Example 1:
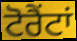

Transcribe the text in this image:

ਟੋਰੈਂਟਾਂ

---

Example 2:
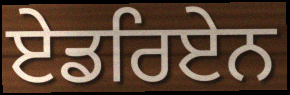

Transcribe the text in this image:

ਏਡਰਿਏਨ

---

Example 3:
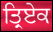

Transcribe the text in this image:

ਤ੍ਰਿਏਕ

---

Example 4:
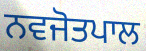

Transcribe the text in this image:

ਨਵਜੋਤਪਾਲ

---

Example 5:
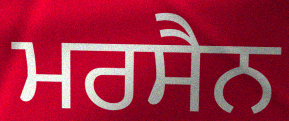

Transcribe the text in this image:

ਮਰਸੈਨ